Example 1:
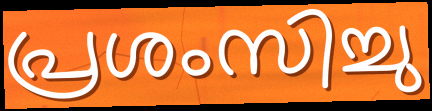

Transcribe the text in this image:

പ്രശംസിച്ചു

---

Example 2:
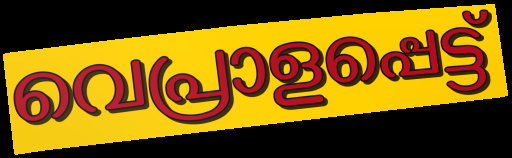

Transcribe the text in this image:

വെപ്രാളപ്പെട്ട്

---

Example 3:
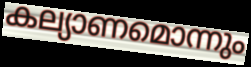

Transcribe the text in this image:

കല്യാണമൊന്നും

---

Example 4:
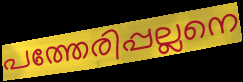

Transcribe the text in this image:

പത്തേരിപ്പല്ലനെ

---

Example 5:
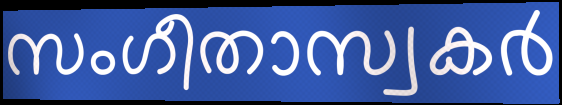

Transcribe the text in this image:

സംഗീതാസ്വകർ